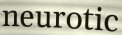
neurotic